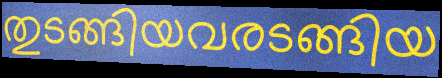
തുടങ്ങിയവരടങ്ങിയ